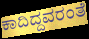
ಕಾದಿದ್ದವರಂತೆ